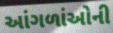
આંગળાંઓની